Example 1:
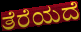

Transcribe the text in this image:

ತೆರೆಯದೆ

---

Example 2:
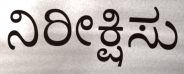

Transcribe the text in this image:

ನಿರೀಕ್ಷಿಸು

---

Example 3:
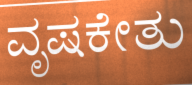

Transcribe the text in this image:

ವೃಷಕೇತು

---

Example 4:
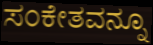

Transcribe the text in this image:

ಸಂಕೇತವನ್ನೂ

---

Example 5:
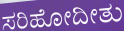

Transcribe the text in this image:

ಸರಿಹೋದೀತು